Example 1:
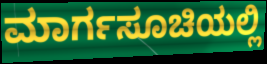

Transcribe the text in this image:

ಮಾರ್ಗಸೂಚಿಯಲ್ಲಿ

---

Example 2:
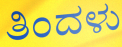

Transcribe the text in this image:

ತಿಂದಳು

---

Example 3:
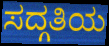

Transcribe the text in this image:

ಸದ್ಗತಿಯ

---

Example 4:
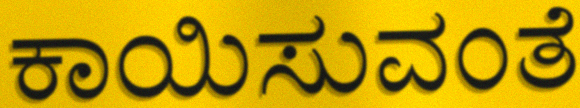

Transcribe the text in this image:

ಕಾಯಿಸುವಂತೆ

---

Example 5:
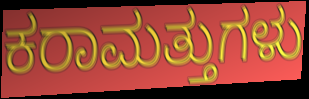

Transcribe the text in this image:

ಕರಾಮತ್ತುಗಳು